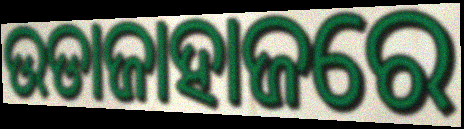
ଉଡାଜାହାଜରେ